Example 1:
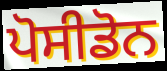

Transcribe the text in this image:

ਪੋਸੀਡੋਨ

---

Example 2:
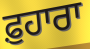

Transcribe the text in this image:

ਫ਼ੁਹਾਰਾ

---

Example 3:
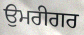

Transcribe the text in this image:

ਉਮਰੀਗਰ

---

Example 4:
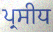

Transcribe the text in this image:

ਪ੍ਰਸੀਧ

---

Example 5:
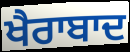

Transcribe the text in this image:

ਖੈਰਾਬਾਦ